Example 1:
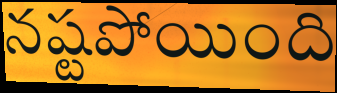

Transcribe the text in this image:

నష్టపోయింది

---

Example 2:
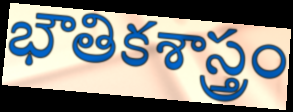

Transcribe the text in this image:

భౌతికశాస్త్రం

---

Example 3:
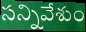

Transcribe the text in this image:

సన్నివేశుం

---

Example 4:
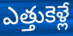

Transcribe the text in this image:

ఎత్తుకెళ్లే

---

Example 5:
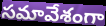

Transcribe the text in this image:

సమావేశంగా